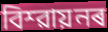
বিশ্ৱায়নৰ